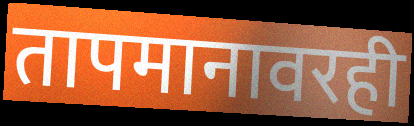
तापमानावरही